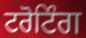
ਟਰੋਟਿੰਗ